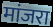
मांजरा